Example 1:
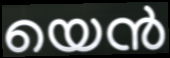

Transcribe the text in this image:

യെൻ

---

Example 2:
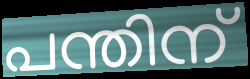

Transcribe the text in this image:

പന്തിന്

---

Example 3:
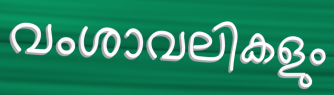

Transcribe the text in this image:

വംശാവലികളും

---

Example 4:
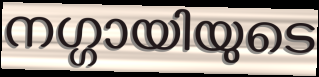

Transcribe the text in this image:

നഗ്ഗായിയുടെ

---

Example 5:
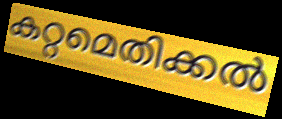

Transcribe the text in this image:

കറ്റമെതിക്കൽ